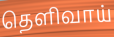
தெளிவாய்